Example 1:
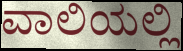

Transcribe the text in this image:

ವಾಲಿಯಲ್ಲಿ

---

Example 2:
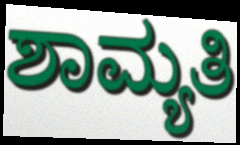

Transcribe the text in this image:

ಶಾಮ್ಯತಿ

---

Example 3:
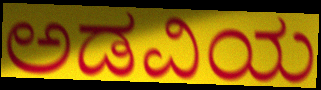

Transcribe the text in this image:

ಅಡವಿಯ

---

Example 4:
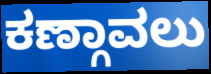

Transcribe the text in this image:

ಕಣ್ಗಾವಲು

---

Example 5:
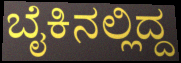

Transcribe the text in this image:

ಬೈಕಿನಲ್ಲಿದ್ದ